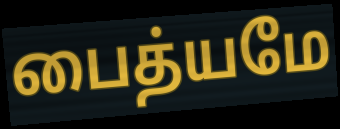
பைத்யமே